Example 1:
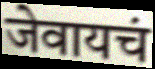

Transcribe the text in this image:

जेवायचं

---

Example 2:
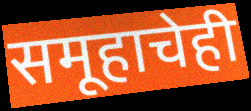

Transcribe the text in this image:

समूहाचेही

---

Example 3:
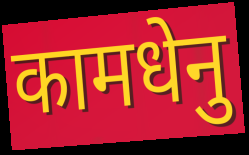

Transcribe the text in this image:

कामधेनु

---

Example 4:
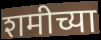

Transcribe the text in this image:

शमीच्या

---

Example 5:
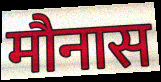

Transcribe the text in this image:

मौनास